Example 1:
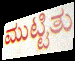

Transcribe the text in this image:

ಮುಟ್ಟಿತು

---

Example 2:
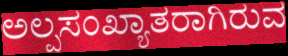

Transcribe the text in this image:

ಅಲ್ಪಸಂಖ್ಯಾತರಾಗಿರುವ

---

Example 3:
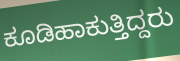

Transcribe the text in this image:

ಕೂಡಿಹಾಕುತ್ತಿದ್ದರು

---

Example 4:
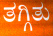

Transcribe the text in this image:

ತಗ್ಗಿತು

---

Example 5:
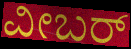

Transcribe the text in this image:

ವೀಬರ್